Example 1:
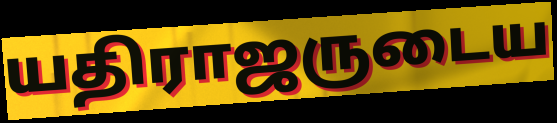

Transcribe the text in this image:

யதிராஜருடைய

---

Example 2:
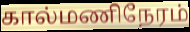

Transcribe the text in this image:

கால்மணிநேரம்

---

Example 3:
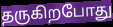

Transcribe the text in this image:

தருகிறபோது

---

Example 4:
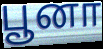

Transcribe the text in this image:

பூனா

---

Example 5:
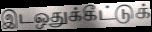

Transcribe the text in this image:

இடஒதுக்கீட்டுக்